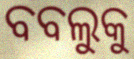
ବବଲୁକୁ